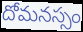
దోమనస్సం